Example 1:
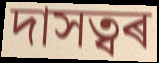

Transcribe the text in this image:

দাসত্বৰ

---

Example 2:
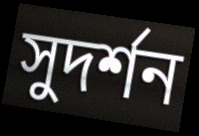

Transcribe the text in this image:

সুদৰ্শন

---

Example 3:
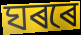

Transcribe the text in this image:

ঘৰৰে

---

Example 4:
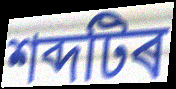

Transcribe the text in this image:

শব্দটিৰ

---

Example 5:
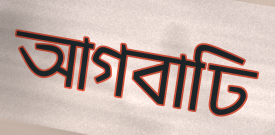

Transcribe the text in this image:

আগবাঢি